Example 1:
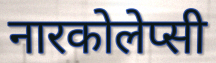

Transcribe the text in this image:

नारकोलेप्सी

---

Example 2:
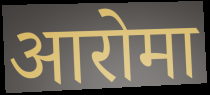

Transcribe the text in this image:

आरोमा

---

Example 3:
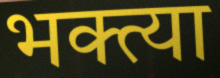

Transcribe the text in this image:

भक्त्या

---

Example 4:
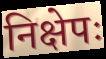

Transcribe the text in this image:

निक्षेपः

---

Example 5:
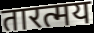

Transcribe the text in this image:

तारत्मय